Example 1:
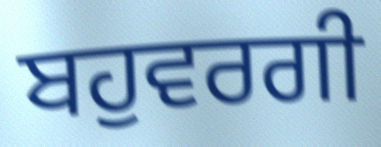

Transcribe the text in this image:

ਬਹੁਵਰਗੀ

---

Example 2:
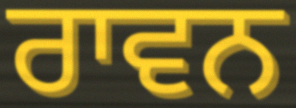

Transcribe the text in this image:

ਰਾਵਨ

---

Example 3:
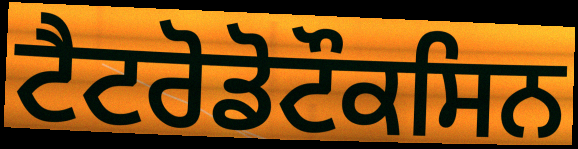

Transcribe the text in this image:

ਟੈਟਰੋਡੋਟੌਕਸਿਨ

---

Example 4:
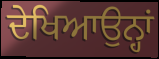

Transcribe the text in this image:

ਦੇਖਿਆਉਨ੍ਹਾਂ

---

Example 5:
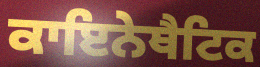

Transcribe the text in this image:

ਕਾਇਨੇਥੈਟਿਕ